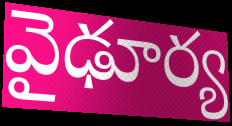
వైఢూర్య